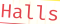
Halls